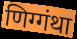
णिग्गंथा